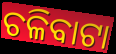
ଚଳିବାଟା